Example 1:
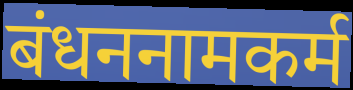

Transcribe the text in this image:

बंधननामकर्म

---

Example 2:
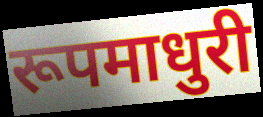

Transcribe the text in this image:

रूपमाधुरी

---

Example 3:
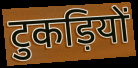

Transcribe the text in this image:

टुकड़ियों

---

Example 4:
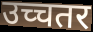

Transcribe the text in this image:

उच्चतर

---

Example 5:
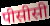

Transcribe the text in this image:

पीसीसी